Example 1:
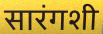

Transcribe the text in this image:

सारंगशी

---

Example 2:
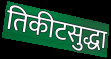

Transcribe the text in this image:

तिकीटसुद्धा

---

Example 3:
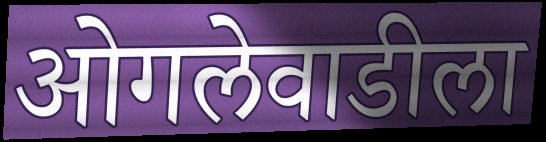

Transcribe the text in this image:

ओगलेवाडीला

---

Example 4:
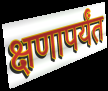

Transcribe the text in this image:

क्षणापर्यंत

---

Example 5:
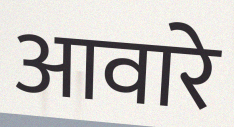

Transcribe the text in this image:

आवारे